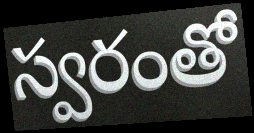
స్వరంతో